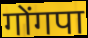
गोंगपा